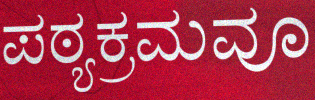
ಪಠ್ಯಕ್ರಮವೂ